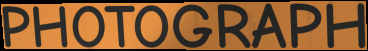
PHOTOGRAPH